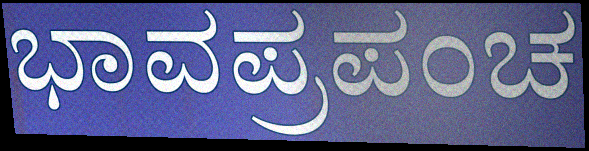
ಭಾವಪ್ರಪಂಚ